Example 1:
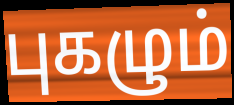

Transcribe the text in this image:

புகழும்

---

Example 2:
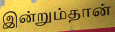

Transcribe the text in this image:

இன்றும்தான்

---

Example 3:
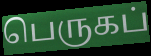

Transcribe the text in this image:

பெருகப்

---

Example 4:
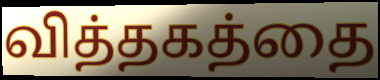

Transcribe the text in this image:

வித்தகத்தை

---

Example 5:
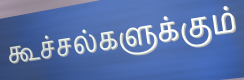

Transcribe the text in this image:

கூச்சல்களுக்கும்